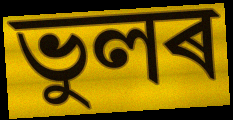
ভুলৰ